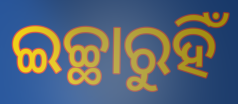
ଇଚ୍ଛାରୁହିଁ